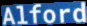
Alford